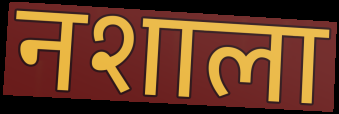
नशाला